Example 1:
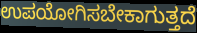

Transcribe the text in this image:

ಉಪಯೋಗಿಸಬೇಕಾಗುತ್ತದೆ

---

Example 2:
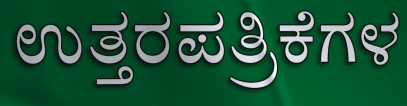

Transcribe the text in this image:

ಉತ್ತರಪತ್ರಿಕೆಗಳ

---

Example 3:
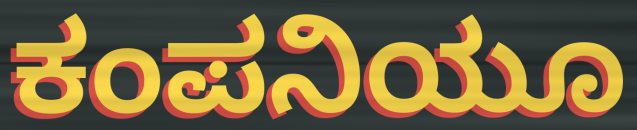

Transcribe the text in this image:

ಕಂಪನಿಯೂ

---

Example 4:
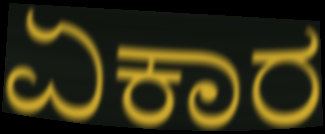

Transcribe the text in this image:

ಏಕಾರ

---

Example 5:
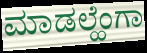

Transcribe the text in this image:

ಮಾಡಲ್ಹೆಂಗಾ